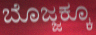
ಬೊಜ್ಜಕ್ಕೂ